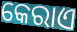
କେରାଏ